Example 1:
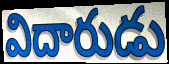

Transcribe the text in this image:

విదారుడు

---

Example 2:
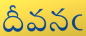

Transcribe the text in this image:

దీవనఁ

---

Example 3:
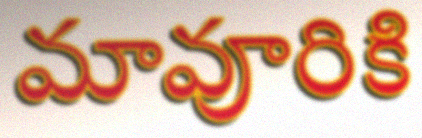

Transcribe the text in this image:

మావూరికి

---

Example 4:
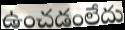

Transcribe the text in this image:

ఉంచడంలేదు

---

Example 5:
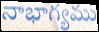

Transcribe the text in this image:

నాభాగ్యము